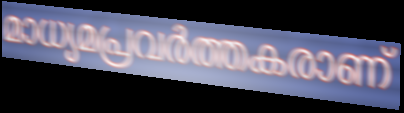
മാധ്യമപ്രവർത്തകരാണ്